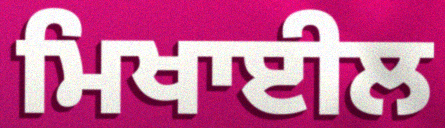
ਮਿਖਾਈਲ